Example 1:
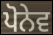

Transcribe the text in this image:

ਪੋਨੇਵ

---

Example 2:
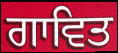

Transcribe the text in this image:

ਗਾਵਿਤ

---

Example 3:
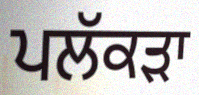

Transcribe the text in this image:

ਪਲੱਕੜਾ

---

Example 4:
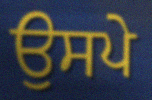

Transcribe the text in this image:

ਉਸਪੇ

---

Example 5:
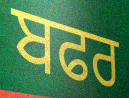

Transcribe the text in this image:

ਬਫਰ